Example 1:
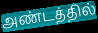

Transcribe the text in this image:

அண்டத்தில்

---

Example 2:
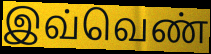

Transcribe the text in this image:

இவ்வெண்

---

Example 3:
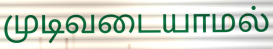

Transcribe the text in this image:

முடிவடையாமல்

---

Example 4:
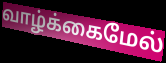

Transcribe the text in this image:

வாழ்க்கைமேல்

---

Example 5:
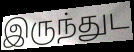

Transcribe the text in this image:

இருந்துட